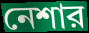
নেশার